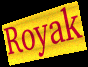
Royak